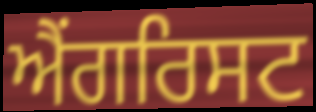
ਐਂਗਰਿਸਟ